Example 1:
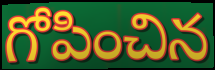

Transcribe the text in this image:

గోపించిన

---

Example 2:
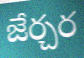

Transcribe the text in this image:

జేర్చర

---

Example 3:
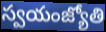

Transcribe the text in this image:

స్వయంజ్యోతి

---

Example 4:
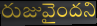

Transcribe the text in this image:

రుజువైందని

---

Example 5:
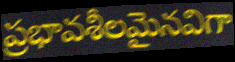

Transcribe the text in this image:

ప్రభావశీలమైనవిగా